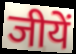
जीयें